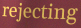
rejecting